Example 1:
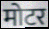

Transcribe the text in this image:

मोटर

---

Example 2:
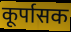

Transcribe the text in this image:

कूर्पासक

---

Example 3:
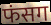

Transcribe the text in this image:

फंसग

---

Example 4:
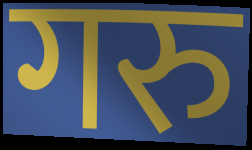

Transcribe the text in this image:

गरु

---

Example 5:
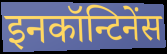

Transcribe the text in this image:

इनकॉन्टिनेंस